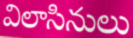
విలాసినులు